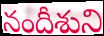
నందీశుని